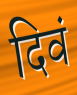
दिवं